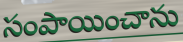
సంపాయించాను